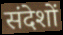
संदेशों